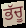
ਭੱਚੂ